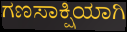
ಗಣಸಾಕ್ಷಿಯಾಗಿ